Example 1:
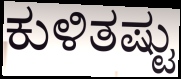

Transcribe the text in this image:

ಕುಳಿತಷ್ಟು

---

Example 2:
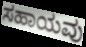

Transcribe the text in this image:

ಸಹಾಯವು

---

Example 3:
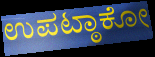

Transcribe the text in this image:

ಉಪಟ್ಠಾಕೋ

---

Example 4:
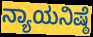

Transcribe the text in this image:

ನ್ಯಾಯನಿಷ್ಠೆ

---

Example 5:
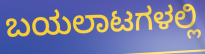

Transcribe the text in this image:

ಬಯಲಾಟಗಳಲ್ಲಿ